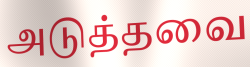
அடுத்தவை